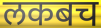
लकबच